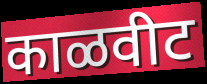
काळवीट